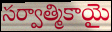
సర్వాత్మికాయై